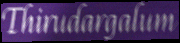
Thirudargalum